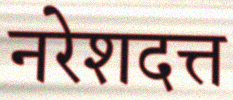
नरेशदत्त